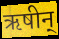
ऋषीन्